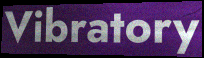
Vibratory